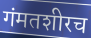
गंमतशीरच